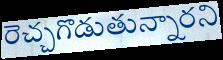
రెచ్చగొడుతున్నారని